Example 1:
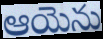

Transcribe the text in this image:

ఆయెను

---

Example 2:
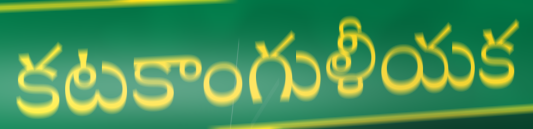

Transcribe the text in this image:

కటకాంగుళీయక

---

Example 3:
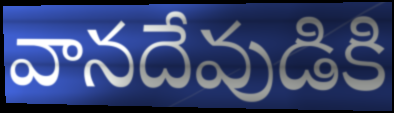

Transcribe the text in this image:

వానదేవుడికి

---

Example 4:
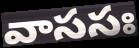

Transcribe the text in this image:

వాససః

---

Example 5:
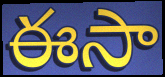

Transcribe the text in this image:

ఈసా